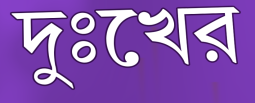
দুঃখের